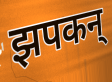
झपकन्